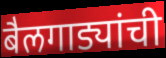
बैलगाड्यांची